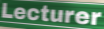
Lecturer